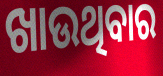
ଖାଉଥିବାର